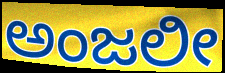
ಅಂಜಲೀ